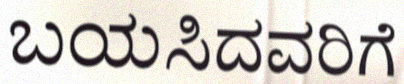
ಬಯಸಿದವರಿಗೆ